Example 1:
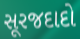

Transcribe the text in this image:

સૂરજદાદો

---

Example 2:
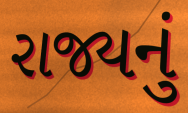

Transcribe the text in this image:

રાજ્યનું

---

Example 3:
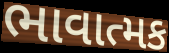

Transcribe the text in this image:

ભાવાત્મક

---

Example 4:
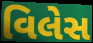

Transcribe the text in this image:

વિલેસ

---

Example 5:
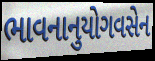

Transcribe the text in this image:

ભાવનાનુયોગવસેન